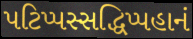
પટિપ્પસ્સદ્ધિપ્પહાનં